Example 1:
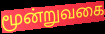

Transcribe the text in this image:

மூன்றுவகை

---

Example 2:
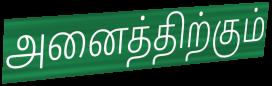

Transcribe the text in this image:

அனைத்திற்கும்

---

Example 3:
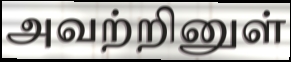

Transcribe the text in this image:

அவற்றினுள்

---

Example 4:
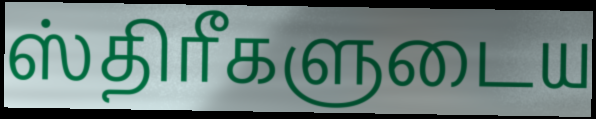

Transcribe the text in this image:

ஸ்திரீகளுடைய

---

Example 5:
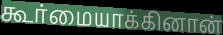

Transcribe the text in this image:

கூர்மையாக்கினான்